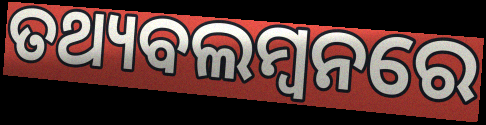
ତଥ୍ୟବଲମ୍ବନରେ